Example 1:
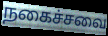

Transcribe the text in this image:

நகைச்சவை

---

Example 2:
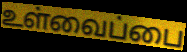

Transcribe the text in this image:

உள்வைப்பை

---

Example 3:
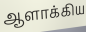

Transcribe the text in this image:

ஆளாக்கிய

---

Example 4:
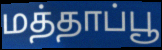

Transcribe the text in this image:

மத்தாப்பூ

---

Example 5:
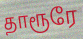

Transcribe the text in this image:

தாரூரே